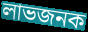
লাভজনক